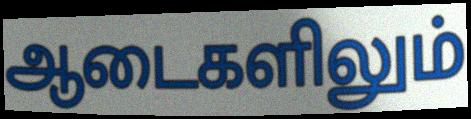
ஆடைகளிலும்